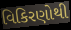
વિકિરણોથી